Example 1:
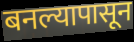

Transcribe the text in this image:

बनल्यापासून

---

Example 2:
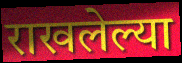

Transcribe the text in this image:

राखलेल्या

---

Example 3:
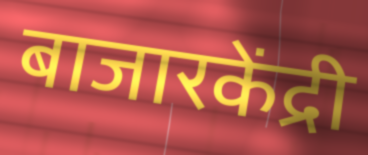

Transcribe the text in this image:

बाजारकेंद्री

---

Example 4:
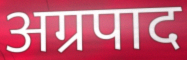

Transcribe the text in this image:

अग्रपाद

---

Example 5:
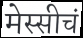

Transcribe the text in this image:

मेस्सीचं